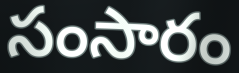
సంసారం